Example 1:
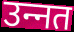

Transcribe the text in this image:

उन्‍नत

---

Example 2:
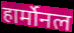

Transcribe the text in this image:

हार्मोनल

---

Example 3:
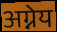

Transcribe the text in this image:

अग्नेय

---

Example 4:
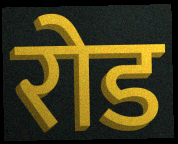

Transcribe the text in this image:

रोड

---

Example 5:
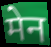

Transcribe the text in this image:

मेन